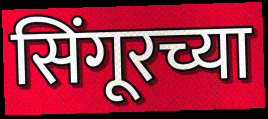
सिंगूरच्या